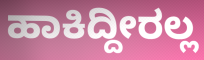
ಹಾಕಿದ್ದೀರಲ್ಲ